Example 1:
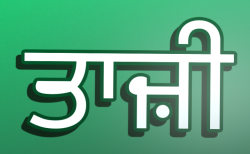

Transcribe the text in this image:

ਤਾਜ਼ੀ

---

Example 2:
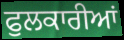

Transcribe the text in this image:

ਫੁਲਕਾਰੀਆਂ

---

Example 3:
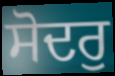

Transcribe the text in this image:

ਸੋਦਰੁ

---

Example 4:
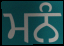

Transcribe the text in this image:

ਮਨੰ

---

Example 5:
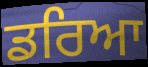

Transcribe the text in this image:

ਡਰਿਆ